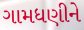
ગામધણીને